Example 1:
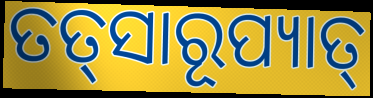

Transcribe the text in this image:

ତତ୍‌ସାରୂପ୍ୟାତ୍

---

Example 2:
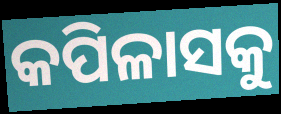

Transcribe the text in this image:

କପିଳାସକୁ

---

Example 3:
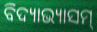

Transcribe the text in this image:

ବିଦ୍ୟାଭ୍ୟାସମ୍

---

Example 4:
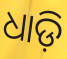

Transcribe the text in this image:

ଧାଡ଼ି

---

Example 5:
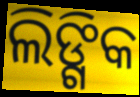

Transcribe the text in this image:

ଲିଙ୍ଗିକ